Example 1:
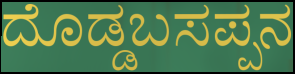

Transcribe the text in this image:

ದೊಡ್ಡಬಸಪ್ಪನ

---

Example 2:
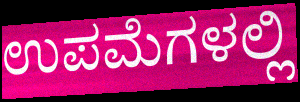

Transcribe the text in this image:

ಉಪಮೆಗಳಲ್ಲಿ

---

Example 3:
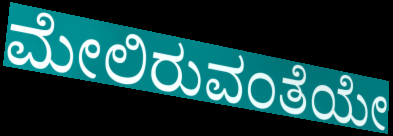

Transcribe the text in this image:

ಮೇಲಿರುವಂತೆಯೇ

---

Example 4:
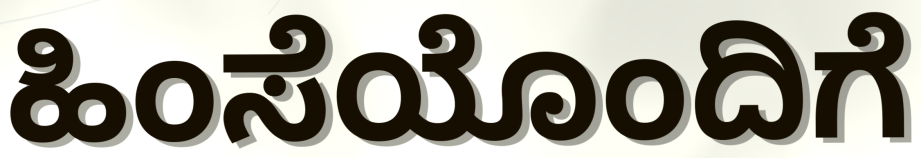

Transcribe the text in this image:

ಹಿಂಸೆಯೊಂದಿಗೆ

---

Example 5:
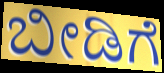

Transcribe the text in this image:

ಬೀಡಿಗೆ